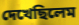
দেখেছিলেম